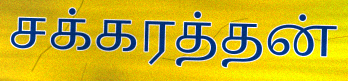
சக்கரத்தன்